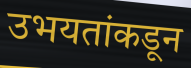
उभयतांकडून